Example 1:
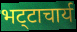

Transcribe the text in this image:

भट्‍टाचार्य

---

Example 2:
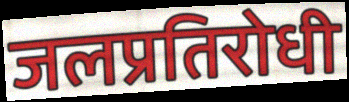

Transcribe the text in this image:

जलप्रतिरोधी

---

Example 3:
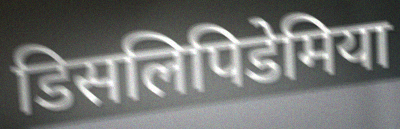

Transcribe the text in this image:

डिसलिपिडेमिया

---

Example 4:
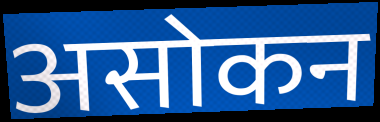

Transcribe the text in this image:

असोकन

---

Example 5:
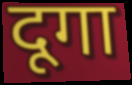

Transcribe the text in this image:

दूगा